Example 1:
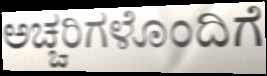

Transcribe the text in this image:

ಅಚ್ಚರಿಗಳೊಂದಿಗೆ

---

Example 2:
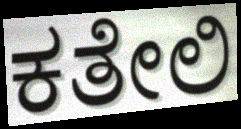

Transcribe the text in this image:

ಕತೇಲಿ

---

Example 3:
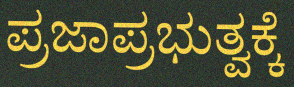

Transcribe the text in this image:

ಪ್ರಜಾಪ್ರಭುತ್ವಕ್ಕೆ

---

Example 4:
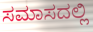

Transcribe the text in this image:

ಸಮಾಸದಲ್ಲಿ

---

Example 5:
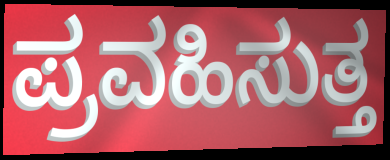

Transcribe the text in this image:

ಪ್ರವಹಿಸುತ್ತ